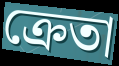
ক্রেতা